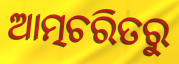
ଆତ୍ମଚରିତରୁ